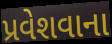
પ્રવેશવાના